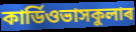
কাৰ্ডিওভাসকুলাৰ